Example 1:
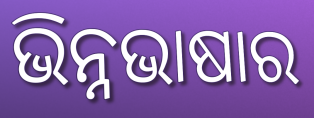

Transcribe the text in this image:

ଭିନ୍ନଭାଷାର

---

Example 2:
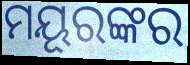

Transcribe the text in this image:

ମୟୂରଙ୍କର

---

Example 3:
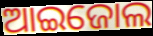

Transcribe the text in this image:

ଆଇଜୋଲ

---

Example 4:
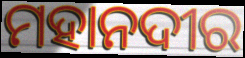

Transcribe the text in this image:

ମହାନଦୀର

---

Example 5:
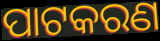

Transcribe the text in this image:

ପାଟକରଣ